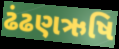
ઢંઢણઋષિ